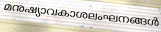
മനുഷ്യാവകാശലംഘനങ്ങൾ